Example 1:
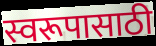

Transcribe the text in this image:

स्वरूपासाठी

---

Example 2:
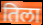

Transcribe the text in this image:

तिला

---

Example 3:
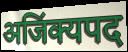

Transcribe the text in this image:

अजिंक्यपद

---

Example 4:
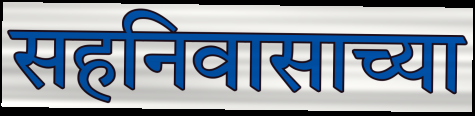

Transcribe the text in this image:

सहनिवासाच्या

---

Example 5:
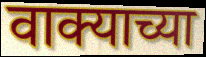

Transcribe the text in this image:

वाक्याच्या